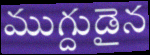
ముగ్దుడైన